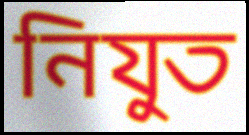
নিযুত